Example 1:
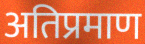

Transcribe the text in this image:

अतिप्रमाण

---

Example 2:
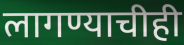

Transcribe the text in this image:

लागण्याचीही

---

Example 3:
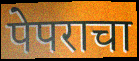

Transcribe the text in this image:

पेपराचा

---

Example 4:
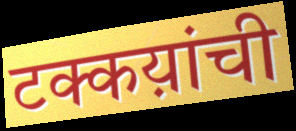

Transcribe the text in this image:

टक्कय़ांची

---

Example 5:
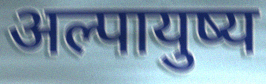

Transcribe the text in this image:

अल्पायुष्य